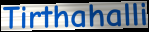
Tirthahalli